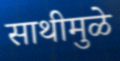
साथीमुळे